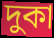
দুকা